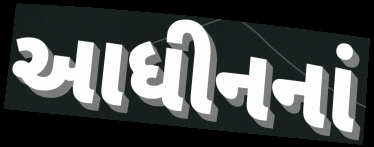
આધીનનાં